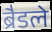
ब्रैडले